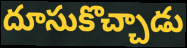
దూసుకొచ్చాడు